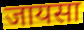
जायसा